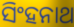
ସିଂହନାଥ